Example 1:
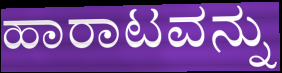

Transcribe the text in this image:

ಹಾರಾಟವನ್ನು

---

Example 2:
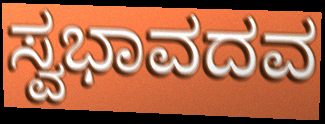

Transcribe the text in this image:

ಸ್ವಭಾವದವ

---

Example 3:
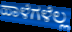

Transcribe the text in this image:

ಹಾಳೆಗಳೆಲ್ಲ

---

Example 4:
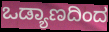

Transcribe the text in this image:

ಒಡ್ಯಾಣದಿಂದ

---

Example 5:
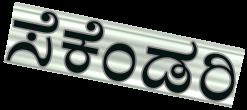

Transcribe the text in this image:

ಸೆಕೆಂಡರಿ